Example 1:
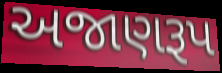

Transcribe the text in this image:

અજાણરૂપ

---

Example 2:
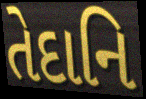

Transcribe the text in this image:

તેદાનિ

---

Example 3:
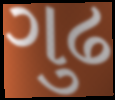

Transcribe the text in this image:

ગુઢ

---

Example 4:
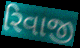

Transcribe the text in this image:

રિવાજી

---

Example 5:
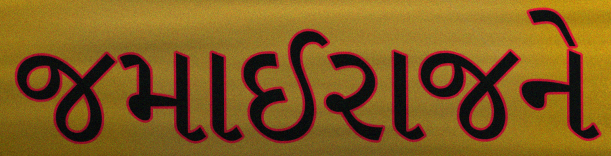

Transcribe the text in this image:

જમાઈરાજને